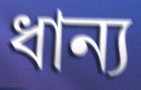
ধান্য